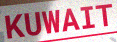
KUWAIT